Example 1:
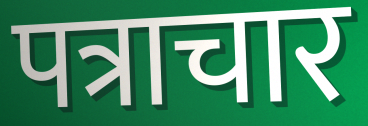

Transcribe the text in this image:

पत्राचार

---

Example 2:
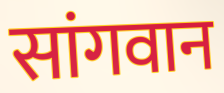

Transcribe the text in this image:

सांगवान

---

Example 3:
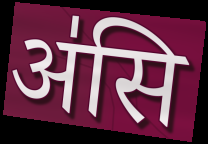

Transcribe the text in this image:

अ॑सि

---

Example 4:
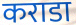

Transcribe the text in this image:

कराडा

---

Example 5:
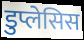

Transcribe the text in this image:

डुप्लेसिस